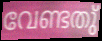
വേണ്ടതു്